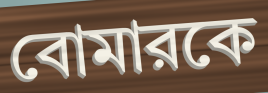
বোমারকে